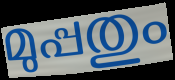
മുപ്പതും